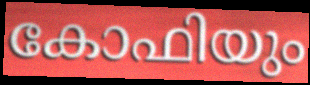
കോഫിയും